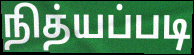
நித்யப்படி